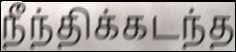
நீந்திக்கடந்த